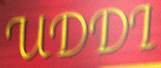
UDDI